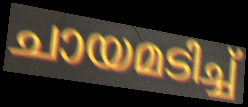
ചായമടിച്ച്